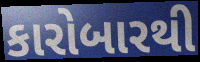
કારોબારથી